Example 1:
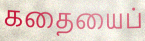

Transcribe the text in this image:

கதையைப்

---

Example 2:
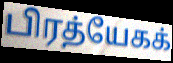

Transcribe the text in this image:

பிரத்யேகக்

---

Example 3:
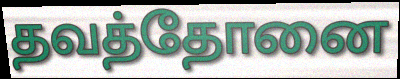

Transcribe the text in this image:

தவத்தோனை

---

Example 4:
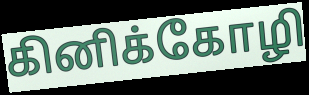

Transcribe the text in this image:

கினிக்கோழி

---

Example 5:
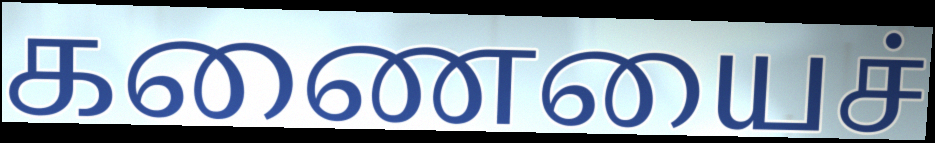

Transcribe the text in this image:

கணையைச்